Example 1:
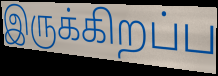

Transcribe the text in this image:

இருக்கிறப்ப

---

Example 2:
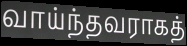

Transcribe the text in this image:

வாய்ந்தவராகத்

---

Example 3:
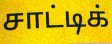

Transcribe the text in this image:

சாட்டிக்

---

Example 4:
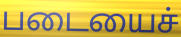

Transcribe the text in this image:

படையைச்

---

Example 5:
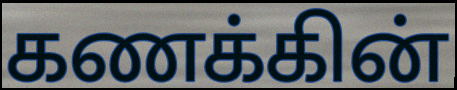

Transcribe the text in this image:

கணக்கின்